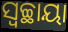
ସ୍ୱଚ୍ଛାୟା